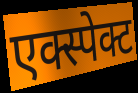
एक्स्पेक्ट